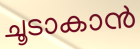
ചൂടാകാൻ